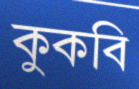
কুকবি